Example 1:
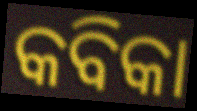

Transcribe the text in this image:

କବିକା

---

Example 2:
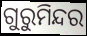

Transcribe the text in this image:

ଗୁରୁମିନ୍ଦର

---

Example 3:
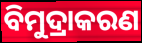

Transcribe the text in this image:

ବିମୁଦ୍ରାକରଣ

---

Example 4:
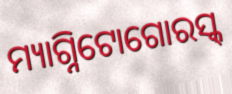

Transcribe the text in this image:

ମ୍ୟାଗ୍ନିଟୋଗୋରସ୍କ୍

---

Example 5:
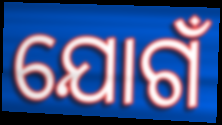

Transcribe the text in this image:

ଯୋଗଁ